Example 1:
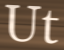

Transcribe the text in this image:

Ut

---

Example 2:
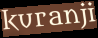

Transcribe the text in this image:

kuranji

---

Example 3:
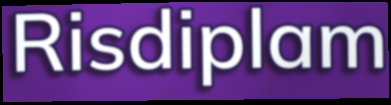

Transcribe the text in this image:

Risdiplam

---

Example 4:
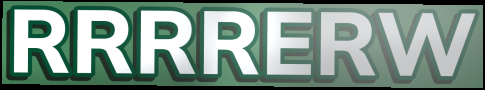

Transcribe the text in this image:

RRRRERW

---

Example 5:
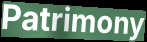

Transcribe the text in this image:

Patrimony